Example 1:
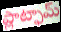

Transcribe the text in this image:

ప్లాట్ఫామ్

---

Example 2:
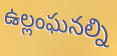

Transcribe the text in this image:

ఉల్లంఘనల్ని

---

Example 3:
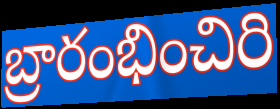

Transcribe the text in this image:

బ్రారంభించిరి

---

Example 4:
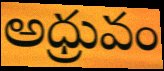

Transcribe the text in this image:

అధ్రువం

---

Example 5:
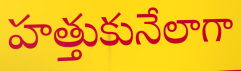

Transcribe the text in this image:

హత్తుకునేలాగా